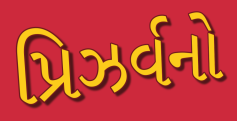
પ્રિઝર્વનો